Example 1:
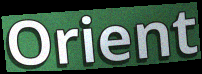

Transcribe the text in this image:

Orient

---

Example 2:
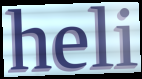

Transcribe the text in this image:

heli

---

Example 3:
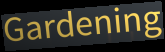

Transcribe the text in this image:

Gardening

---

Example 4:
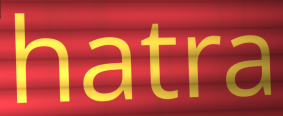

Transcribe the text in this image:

hatra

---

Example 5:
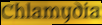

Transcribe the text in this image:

Chlamydia